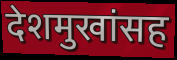
देशमुखांसह